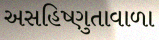
અસહિષ્ણુતાવાળા